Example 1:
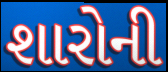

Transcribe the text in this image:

શારોની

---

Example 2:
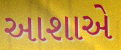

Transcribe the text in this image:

આશાએ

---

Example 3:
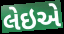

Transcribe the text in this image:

લેઇએ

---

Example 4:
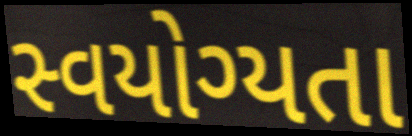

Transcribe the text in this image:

સ્વયોગ્યતા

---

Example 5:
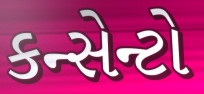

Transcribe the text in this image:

કન્સેન્ટો